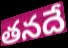
తనదే